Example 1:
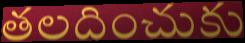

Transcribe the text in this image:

తలదించుకు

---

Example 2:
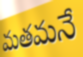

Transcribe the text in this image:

మతమనే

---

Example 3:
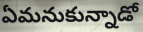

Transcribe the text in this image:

ఏమనుకున్నాడో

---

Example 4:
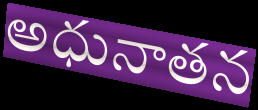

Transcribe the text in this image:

అధునాతన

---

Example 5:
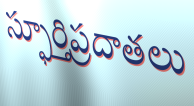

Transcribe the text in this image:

స్ఫూర్తిప్రదాతలు